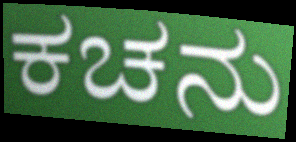
ಕಚನು